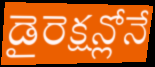
డైరెక్షన్లోనే